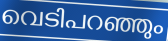
വെടിപറഞ്ഞും